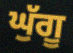
ਘੁੱਗੂ